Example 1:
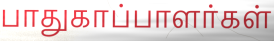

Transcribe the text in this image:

பாதுகாப்பாளர்கள்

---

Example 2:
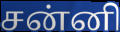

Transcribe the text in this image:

சன்னி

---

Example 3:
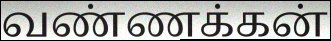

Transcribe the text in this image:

வண்ணக்கன்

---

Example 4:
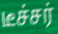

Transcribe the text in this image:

டீச்சர்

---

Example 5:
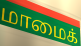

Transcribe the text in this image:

மாமைக்